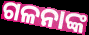
ଗଳନାଙ୍କ